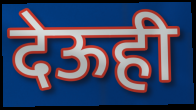
देऊही